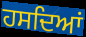
ਹਸਦਿਆਂ